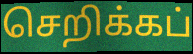
செறிக்கப்